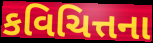
કવિચિત્તના